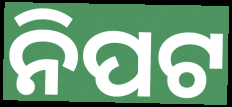
ନିପଟ